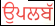
ਉਪਲਬੱ